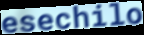
esechilo